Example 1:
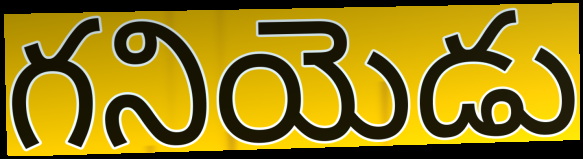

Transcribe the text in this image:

గనియెడు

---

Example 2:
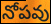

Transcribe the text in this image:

నోపవు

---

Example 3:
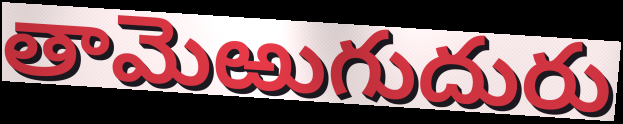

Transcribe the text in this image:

తామెఱుగుదురు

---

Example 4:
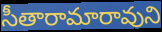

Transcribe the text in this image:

సీతారామారావుని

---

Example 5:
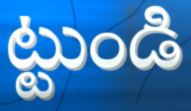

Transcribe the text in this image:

ట్టుండి